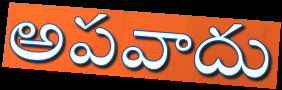
అపవాదు